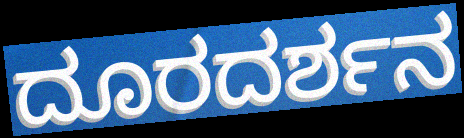
ದೂರದರ್ಶನ